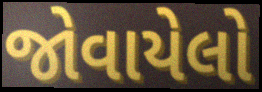
જોવાયેલો